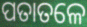
ପତାତଳେ